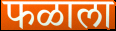
फळाला